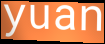
yuan